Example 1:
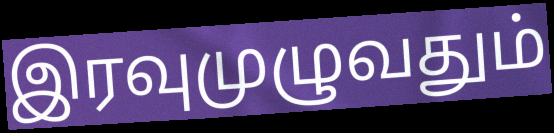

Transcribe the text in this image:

இரவுமுழுவதும்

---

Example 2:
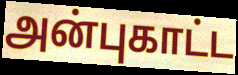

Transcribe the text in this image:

அன்புகாட்ட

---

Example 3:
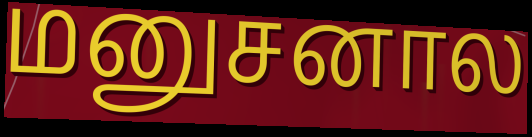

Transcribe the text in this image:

மனுசனால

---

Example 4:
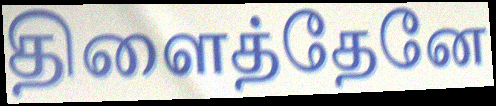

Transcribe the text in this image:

திளைத்தேனே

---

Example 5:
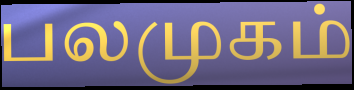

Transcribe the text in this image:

பலமுகம்